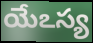
యేఽస్య